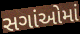
સગાંઓમાં